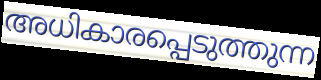
അധികാരപ്പെടുത്തുന്ന